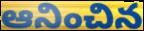
ఆనించిన